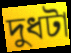
দুধটা